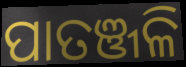
ପାତଞ୍ଜଳି